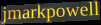
jmarkpowell